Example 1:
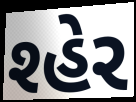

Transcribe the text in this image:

શ્હેર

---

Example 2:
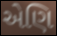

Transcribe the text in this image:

એણિ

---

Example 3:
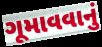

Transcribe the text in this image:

ગૂમાવવાનું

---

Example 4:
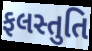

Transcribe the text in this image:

ફલસ્તુતિ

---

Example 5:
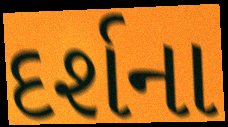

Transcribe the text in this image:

દર્શના